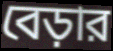
বেড়ার